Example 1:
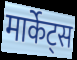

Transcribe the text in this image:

मार्केट्स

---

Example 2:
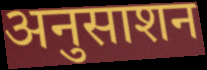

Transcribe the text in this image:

अनुसाशन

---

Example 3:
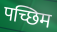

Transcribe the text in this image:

पच्छिम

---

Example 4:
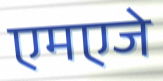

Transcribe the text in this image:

एमएजे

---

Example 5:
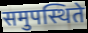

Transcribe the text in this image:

समुपस्थिते